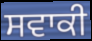
ਸਵਾਕੀ